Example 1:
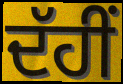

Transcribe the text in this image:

ਦੱਹੀਂ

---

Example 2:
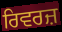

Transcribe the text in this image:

ਰਿਵਰਜ਼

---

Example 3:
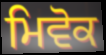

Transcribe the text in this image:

ਮਿਵੋਕ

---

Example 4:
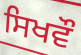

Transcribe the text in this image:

ਸਿਖਵੌ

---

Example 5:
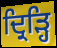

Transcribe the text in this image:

ਦ੍ਰਿੜ੍ਹਿ